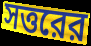
সত্তরের